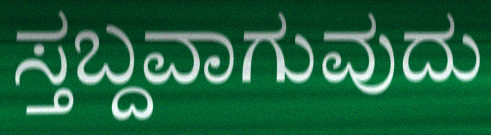
ಸ್ತಬ್ದವಾಗುವುದು